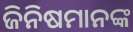
ଜିନିଷମାନଙ୍କ